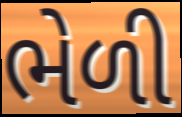
ભેળી